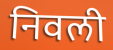
निवली